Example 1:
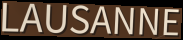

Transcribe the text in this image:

LAUSANNE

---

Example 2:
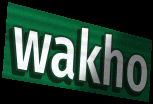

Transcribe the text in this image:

wakho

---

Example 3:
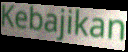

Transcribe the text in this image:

Kebajikan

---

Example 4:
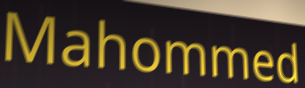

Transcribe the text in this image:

Mahommed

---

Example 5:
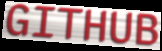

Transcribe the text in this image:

GITHUB